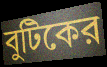
বুটিকের